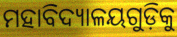
ମହାବିଦ୍ୟାଳୟଗୁଡ଼ିକୁ